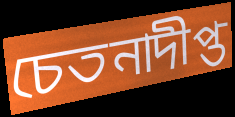
চেতনাদীপ্ত